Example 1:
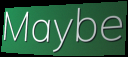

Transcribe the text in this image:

Maybe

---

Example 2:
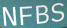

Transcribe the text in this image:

NFBS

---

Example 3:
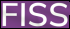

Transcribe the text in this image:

FISS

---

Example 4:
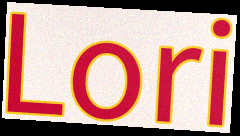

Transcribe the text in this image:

Lori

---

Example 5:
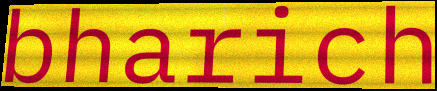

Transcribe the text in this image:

bharich